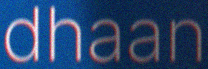
dhaan